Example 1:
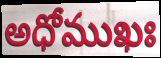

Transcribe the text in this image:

అధోముఖః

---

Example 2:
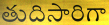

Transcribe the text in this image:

తుదిసారిగా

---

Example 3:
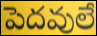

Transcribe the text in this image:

పెదవులే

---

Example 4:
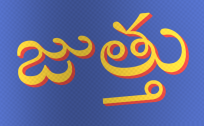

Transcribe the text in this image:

జుత్తు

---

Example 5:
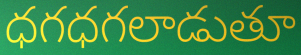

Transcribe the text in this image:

ధగధగలాడుతూ